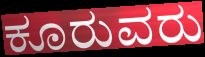
ಕೂರುವರು